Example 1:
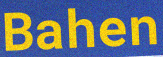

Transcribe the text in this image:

Bahen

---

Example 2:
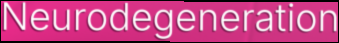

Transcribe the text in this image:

Neurodegeneration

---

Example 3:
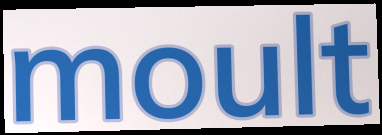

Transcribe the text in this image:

moult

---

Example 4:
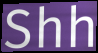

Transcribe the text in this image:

Shh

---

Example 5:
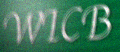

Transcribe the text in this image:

WICB